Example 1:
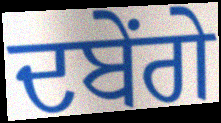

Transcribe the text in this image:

ਦਬੇਂਗੇ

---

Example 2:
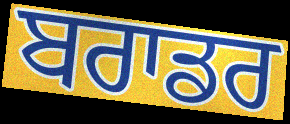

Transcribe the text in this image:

ਬਰਾਡਰ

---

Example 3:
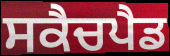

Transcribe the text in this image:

ਸਕੈਚਪੈਡ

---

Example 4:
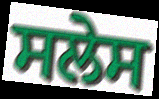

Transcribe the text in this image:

ਸਲੇਸ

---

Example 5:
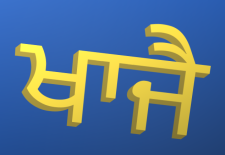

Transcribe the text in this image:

ਖਾਜੈ